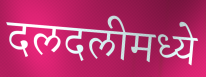
दलदलीमध्ये